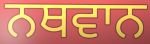
ਨਥਵਾਨ